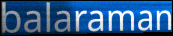
balaraman